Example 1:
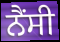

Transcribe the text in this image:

ਨੈਂਸੀ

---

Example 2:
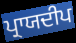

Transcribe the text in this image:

ਪ੍ਰਾਯਦੀਪ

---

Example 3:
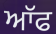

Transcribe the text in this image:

ਆੱਫ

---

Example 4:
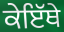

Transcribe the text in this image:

ਕੇਇੱਥੇ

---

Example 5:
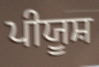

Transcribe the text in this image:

ਪੀਯੂਸ਼